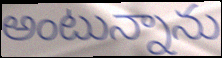
అంటున్నాను